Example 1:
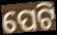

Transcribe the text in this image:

ପେଟି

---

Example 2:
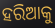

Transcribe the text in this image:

ହରିଆକୁ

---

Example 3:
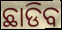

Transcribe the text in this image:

ଛାଡିବ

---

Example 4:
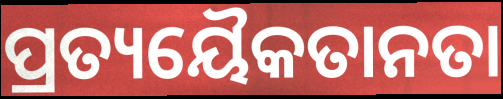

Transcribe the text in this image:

ପ୍ରତ୍ୟୟୈକତାନତା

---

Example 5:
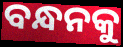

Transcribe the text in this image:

ବନ୍ଧନକୁ